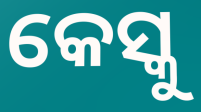
କେସ୍କୁ